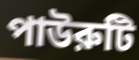
পাউরুটি